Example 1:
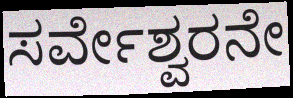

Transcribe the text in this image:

ಸರ್ವೇಶ್ವರನೇ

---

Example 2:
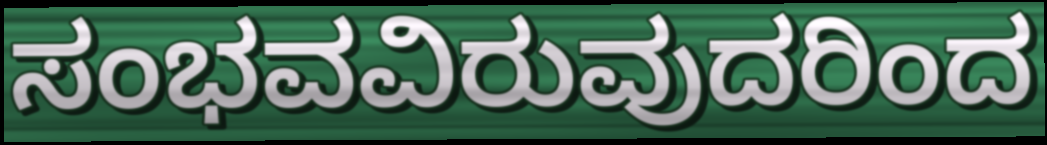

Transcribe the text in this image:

ಸಂಭವವಿರುವುದರಿಂದ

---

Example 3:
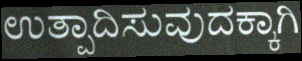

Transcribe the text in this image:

ಉತ್ಪಾದಿಸುವುದಕ್ಕಾಗಿ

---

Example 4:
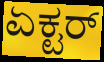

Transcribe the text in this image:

ಏಕ್ಟರ್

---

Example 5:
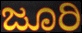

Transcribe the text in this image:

ಜೂರಿ